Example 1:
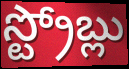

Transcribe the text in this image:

స్ట్రోబ్లు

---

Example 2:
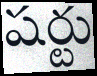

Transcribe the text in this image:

షర్టు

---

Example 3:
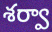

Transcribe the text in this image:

శర్వా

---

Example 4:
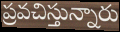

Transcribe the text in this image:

ప్రవచిస్తున్నారు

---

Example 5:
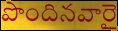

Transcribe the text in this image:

పొందినవారై